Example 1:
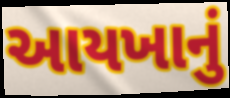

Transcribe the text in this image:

આયખાનું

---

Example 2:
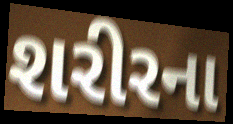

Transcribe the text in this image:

શરીરના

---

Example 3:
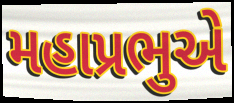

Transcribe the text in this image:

મહાપ્રભુએ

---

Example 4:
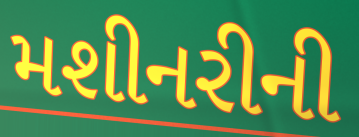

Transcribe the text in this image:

મશીનરીની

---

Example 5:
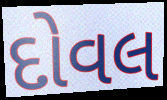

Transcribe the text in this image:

દોવલ